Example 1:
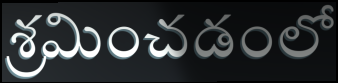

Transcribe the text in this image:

శ్రమించడంలో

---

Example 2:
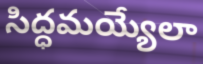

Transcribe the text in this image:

సిద్ధమయ్యేలా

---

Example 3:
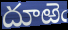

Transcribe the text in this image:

దూఱెఁ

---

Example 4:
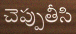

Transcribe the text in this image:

చెప్పుతీసి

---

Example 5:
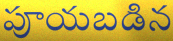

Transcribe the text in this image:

పూయబడిన